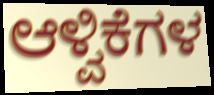
ಆಳ್ವಿಕೆಗಳ